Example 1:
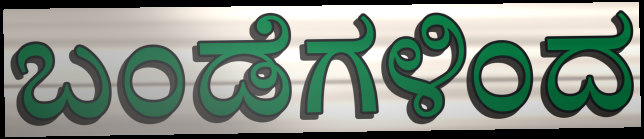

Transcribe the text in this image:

ಬಂಡೆಗಳಿಂದ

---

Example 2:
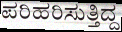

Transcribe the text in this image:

ಪರಿಹರಿಸುತ್ತಿದ್ದ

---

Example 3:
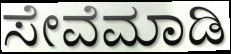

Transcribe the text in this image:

ಸೇವೆಮಾಡಿ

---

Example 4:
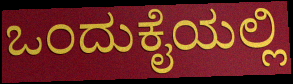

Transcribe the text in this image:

ಒಂದುಕೈಯಲ್ಲಿ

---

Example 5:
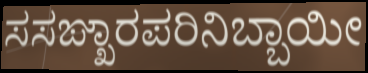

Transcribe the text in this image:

ಸಸಙ್ಖಾರಪರಿನಿಬ್ಬಾಯೀ